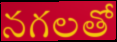
నగలతో